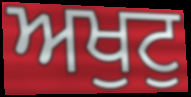
ਅਖੁਟੁ